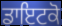
ਡਾਇਟਕੋ